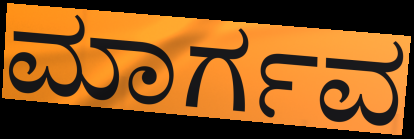
ಮಾರ್ಗವ